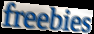
freebies